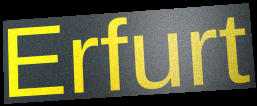
Erfurt